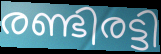
രണ്ടിരട്ടി